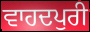
ਵਾਹਦਪੁਰੀ